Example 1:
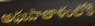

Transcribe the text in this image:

అథఃపాతాళంలోకి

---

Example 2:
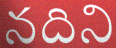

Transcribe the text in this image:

నదిని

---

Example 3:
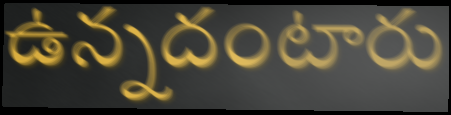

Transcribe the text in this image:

ఉన్నదంటారు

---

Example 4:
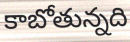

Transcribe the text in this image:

కాబోతున్నది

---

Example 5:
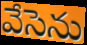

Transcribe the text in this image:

వేసెను